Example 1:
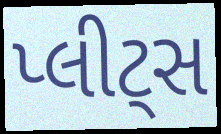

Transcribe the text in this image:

પ્લીટ્સ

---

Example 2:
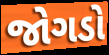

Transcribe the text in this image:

જોગડો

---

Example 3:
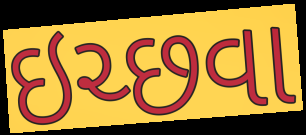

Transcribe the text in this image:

ઇચ્છવા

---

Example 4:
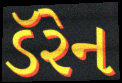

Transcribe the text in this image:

ડૅરેન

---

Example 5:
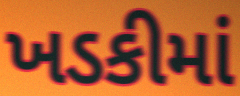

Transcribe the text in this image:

ખડકીમાં